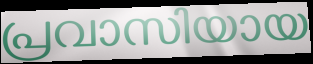
പ്രവാസിയായ